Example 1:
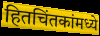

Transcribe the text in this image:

हितचिंतकांमध्ये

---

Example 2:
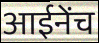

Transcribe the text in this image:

आईनेंच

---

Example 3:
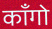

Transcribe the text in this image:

काँगो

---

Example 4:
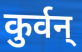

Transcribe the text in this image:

कुर्वन्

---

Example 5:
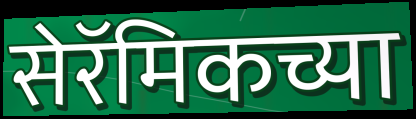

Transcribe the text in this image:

सेरॅमिकच्या